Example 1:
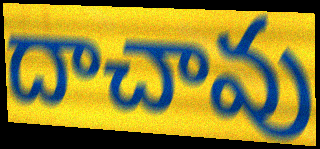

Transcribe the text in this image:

దాచావు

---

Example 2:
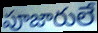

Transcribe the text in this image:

పూజారులే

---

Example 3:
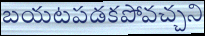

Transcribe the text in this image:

బయటపడకపోవచ్చని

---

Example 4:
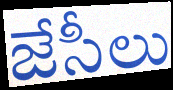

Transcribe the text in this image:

జేసీలు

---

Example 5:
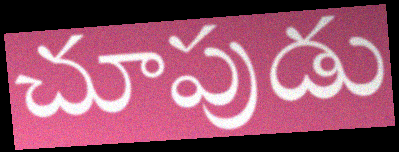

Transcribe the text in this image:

చూపుడు